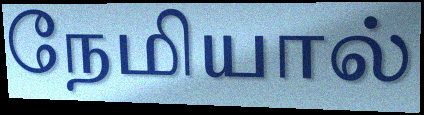
நேமியால்